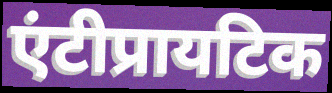
एंटीप्रायटिक